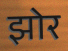
झोर